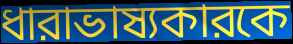
ধারাভাষ্যকারকে